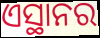
ଏସ୍ଥାନର